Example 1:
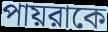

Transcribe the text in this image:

পায়রাকে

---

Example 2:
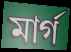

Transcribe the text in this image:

মার্গ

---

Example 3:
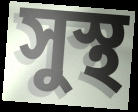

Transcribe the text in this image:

সুস্থ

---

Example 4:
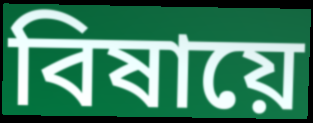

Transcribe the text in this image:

বিষায়ে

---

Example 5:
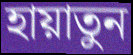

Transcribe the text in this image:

হায়াতুন